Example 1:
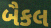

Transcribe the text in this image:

બૈકલ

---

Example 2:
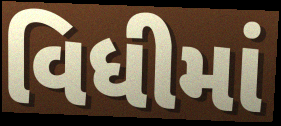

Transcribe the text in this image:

વિધીમાં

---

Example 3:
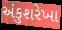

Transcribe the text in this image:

અંકુશરેખા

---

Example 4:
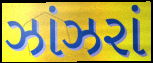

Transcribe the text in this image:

ઝાંઝરાં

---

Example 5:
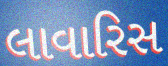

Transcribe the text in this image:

લાવારિસ